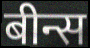
बीन्स